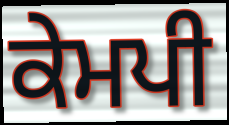
ਕੇਮਪੀ